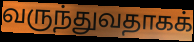
வருந்துவதாகக்